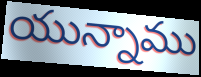
యున్నాము